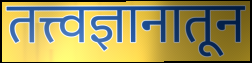
तत्त्वज्ञानातून